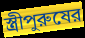
স্ত্রীপুরুষের